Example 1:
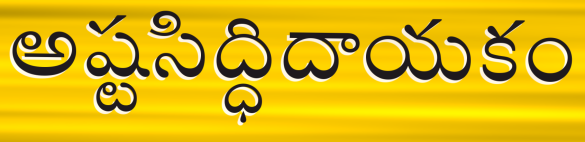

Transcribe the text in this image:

అష్టసిద్ధిదాయకం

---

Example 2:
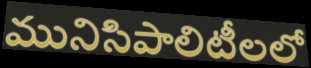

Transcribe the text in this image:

మునిసిపాలిటీలలో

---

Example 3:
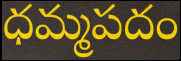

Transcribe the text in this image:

ధమ్మపదం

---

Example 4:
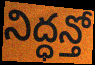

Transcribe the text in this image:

నిద్ధన్తో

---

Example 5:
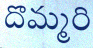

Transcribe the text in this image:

దొమ్మరి